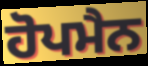
ਹੋਪਮੈਨ